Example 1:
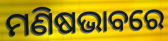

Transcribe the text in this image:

ମଣିଷଭାବରେ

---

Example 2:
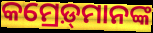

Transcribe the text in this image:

କମ୍ରେଡ଼୍‍ମାନଙ୍କ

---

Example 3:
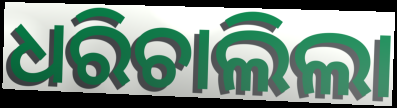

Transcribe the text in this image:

ଧରିଚାଲିଲା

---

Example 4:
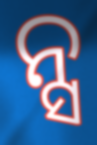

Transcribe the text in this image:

ନ୍ସ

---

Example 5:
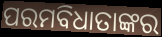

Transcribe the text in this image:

ପରମବିଧାତାଙ୍କର